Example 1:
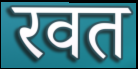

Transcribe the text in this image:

रवत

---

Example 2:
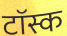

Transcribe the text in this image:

टॉस्‍क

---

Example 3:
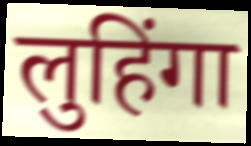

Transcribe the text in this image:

लुहिंगा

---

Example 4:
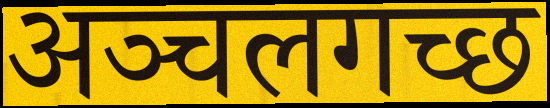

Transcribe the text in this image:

अञ्चलगच्छ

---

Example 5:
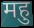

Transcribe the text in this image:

महु